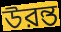
উরন্ত